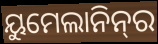
ୟୁମେଲାନିନ୍‌ର